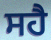
ਸਹੈ